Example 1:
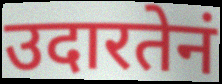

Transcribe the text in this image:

उदारतेनं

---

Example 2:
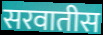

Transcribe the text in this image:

सरवातीस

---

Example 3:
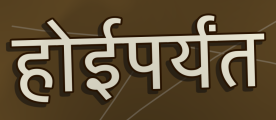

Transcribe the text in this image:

होईपर्यंत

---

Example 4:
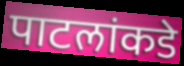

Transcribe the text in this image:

पाटलांकडे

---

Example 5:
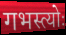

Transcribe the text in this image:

गभस्त्योः